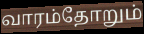
வாரம்தோறும்